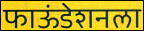
फाऊंडेशनला